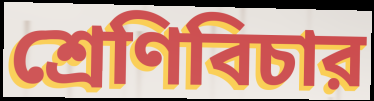
শ্রেণিবিচার